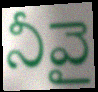
నీవై